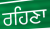
ਰਹਿਣਾ